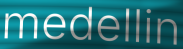
medellin